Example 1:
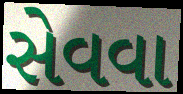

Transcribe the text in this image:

સેવવા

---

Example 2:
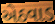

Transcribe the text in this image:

એઠવાડ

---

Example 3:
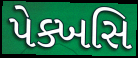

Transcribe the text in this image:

પેક્ખસિ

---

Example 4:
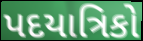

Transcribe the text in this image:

પદયાત્રિકો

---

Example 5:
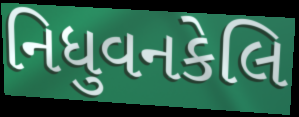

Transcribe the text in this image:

નિધુવનકેલિ